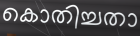
കൊതിച്ചതാ